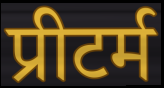
प्रीटर्म